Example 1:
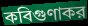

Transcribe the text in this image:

কবিগুণাকর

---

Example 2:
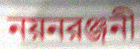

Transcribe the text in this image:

নয়নরঞ্জনী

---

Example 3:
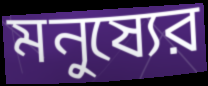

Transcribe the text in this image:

মনুষ্যের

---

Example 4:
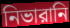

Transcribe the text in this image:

নিভারানি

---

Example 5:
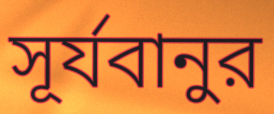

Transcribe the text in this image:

সূর্যবানুর